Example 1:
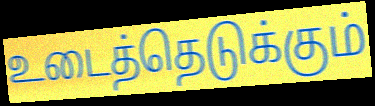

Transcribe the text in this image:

உடைத்தெடுக்கும்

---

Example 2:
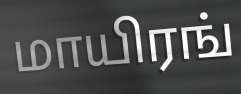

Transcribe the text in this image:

மாயிரங்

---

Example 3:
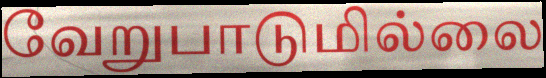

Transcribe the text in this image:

வேறுபாடுமில்லை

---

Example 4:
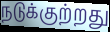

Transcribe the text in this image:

நடுக்குற்றது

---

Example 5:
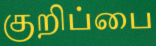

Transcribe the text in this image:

குறிப்பை